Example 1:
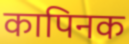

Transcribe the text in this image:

कापिनक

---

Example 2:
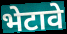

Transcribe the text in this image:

भेटावे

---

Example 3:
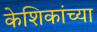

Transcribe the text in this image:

केशिकांच्या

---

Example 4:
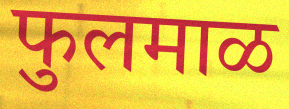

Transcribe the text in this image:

फुलमाळ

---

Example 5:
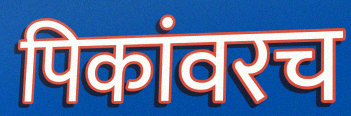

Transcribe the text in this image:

पिकांवरच